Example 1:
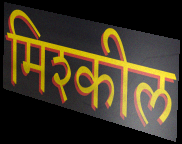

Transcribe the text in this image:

मिश्कील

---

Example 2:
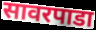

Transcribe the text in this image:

सावरपाडा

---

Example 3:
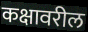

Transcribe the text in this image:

कक्षावरील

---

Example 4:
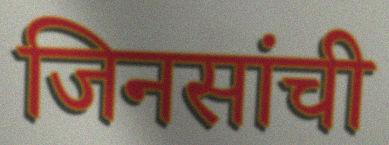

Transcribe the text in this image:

जिनसांची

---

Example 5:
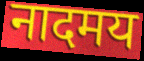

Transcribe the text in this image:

नादमय